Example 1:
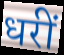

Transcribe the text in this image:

धरीं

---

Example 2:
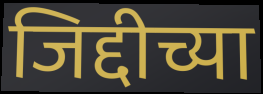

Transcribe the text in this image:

जिद्दीच्या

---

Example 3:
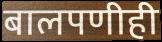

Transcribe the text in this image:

बालपणीही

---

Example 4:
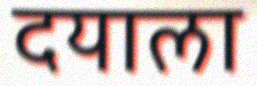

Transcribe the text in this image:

दयाला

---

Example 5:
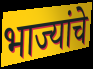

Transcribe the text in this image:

भाज्यांचे